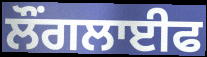
ਲੌਂਗਲਾਈਫ